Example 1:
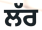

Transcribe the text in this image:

ਲੱਰ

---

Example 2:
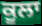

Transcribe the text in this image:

ਕੂਲਾ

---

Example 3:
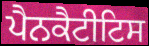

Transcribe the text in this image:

ਪੈਨਕੈਟੀਟਿਸ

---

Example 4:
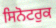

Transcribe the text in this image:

ਸਿਨੋਟਰੁਕ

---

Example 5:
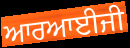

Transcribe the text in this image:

ਆਰਆਈਜੀ